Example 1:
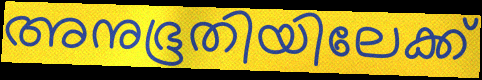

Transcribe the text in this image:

അനുഭൂതിയിലേക്ക്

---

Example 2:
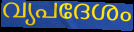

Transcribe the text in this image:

വ്യപദേശം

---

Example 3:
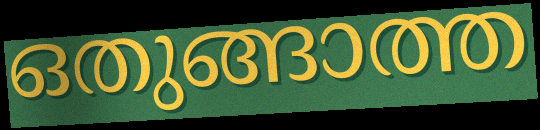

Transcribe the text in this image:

ഒതുങ്ങാത്ത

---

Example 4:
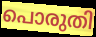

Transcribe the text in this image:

പൊരുതി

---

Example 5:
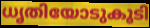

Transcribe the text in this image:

ധൃതിയോടുകൂടി